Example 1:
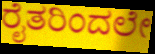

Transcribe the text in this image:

ರೈತರಿಂದಲೇ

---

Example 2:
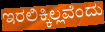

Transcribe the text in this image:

ಇರಲಿಕ್ಕಿಲ್ಲವೆಂದು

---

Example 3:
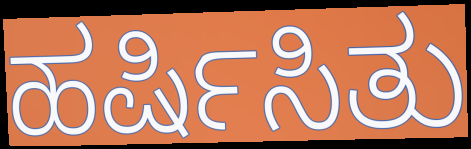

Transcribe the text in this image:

ಹರ್ಷಿಸಿತು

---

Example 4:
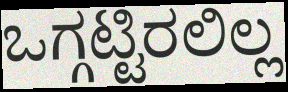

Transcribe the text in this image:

ಒಗ್ಗಟ್ಟಿರಲಿಲ್ಲ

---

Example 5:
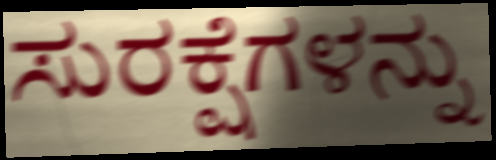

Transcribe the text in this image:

ಸುರಕ್ಷೆಗಳನ್ನು